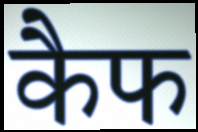
कैफ